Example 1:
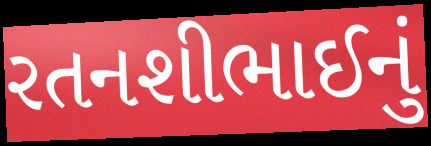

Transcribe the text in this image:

રતનશીભાઈનું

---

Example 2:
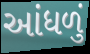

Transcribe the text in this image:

આંધળું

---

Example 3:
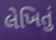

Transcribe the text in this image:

લેખિતું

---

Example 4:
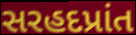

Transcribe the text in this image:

સરહદપ્રાંત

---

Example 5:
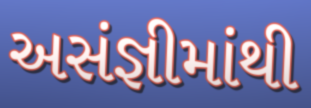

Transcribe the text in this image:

અસંજ્ઞીમાંથી